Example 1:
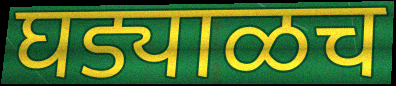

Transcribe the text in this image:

घड्याळच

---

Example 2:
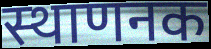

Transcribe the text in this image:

स्थाणनक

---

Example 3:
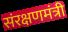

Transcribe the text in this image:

संरक्षणमंत्री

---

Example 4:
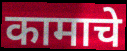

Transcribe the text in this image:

कामाचे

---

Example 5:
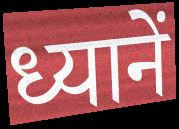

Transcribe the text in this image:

ध्यानें